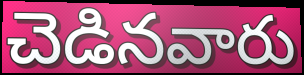
చెడినవారు